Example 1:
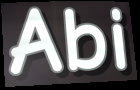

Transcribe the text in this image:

Abi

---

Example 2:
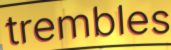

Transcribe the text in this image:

trembles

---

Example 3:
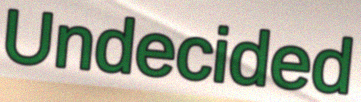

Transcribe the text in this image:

Undecided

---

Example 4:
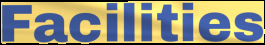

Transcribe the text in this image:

Facilities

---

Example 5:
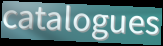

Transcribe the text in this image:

catalogues